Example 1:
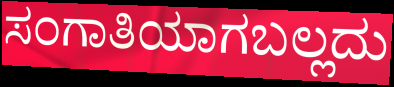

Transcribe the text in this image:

ಸಂಗಾತಿಯಾಗಬಲ್ಲದು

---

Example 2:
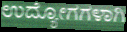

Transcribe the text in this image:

ಉದ್ಯೋಗಗಳಾಗಿ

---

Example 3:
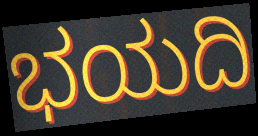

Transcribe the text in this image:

ಭಯದಿ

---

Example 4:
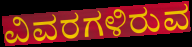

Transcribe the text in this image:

ವಿವರಗಳಿರುವ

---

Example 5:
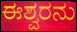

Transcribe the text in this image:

ಈಶ್ವರನು